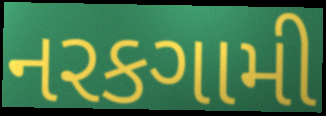
નરકગામી